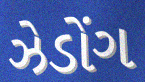
ઝેડોંગ